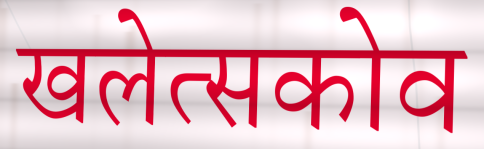
खलेत्सकोव